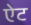
ऐट